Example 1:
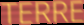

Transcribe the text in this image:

TERRE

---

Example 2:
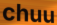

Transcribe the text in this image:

chuu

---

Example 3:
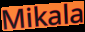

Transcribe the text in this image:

Mikala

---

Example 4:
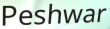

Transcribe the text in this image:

Peshwar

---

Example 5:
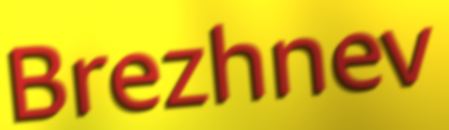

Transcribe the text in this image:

Brezhnev